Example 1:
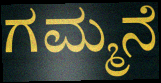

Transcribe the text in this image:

ಗಮ್ಮನೆ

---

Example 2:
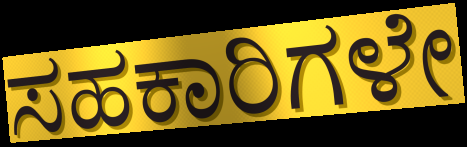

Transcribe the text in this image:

ಸಹಕಾರಿಗಳೇ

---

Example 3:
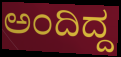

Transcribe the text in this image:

ಅಂದಿದ್ದ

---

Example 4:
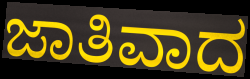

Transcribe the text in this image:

ಜಾತಿವಾದ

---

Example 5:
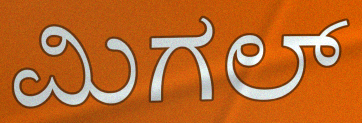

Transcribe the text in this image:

ಮಿಗಲ್